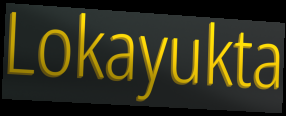
Lokayukta